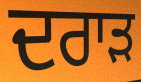
ਦਰਾੜ